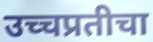
उच्चप्रतीचा